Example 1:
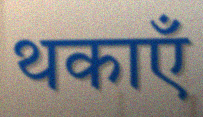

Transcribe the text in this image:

थकाएँ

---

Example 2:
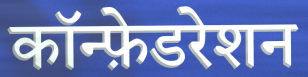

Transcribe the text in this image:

कॉन्फ़ेडरेशन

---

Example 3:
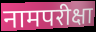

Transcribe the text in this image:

नामपरीक्षा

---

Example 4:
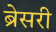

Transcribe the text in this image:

ब्रेसरी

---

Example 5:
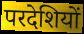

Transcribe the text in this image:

परदेशियों